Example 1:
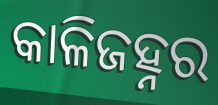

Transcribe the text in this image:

କାଳିଜହ୍ନର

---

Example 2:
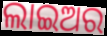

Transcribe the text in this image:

ଲାଇଅର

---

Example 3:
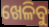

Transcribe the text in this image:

ଖେଳିବୁ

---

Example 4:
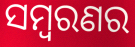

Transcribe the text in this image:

ସମ୍ବରଣର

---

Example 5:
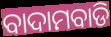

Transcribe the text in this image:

ବାଦାମବାଡି